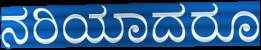
ನರಿಯಾದರೂ